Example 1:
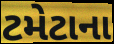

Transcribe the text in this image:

ટમેટાના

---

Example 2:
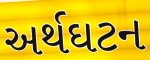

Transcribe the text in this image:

અર્થઘટન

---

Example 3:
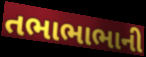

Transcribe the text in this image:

તભાભાભાની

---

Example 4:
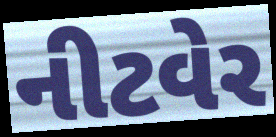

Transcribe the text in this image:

નીટવેર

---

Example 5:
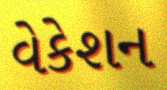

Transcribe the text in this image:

વેકેશન